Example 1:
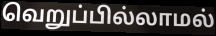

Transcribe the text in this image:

வெறுப்பில்லாமல்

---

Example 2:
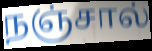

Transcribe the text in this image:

நஞ்சால்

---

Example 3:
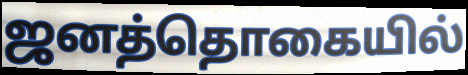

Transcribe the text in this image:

ஜனத்தொகையில்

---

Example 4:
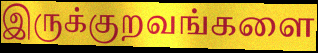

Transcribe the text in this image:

இருக்குறவங்களை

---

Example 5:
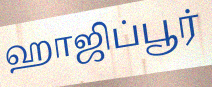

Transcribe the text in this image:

ஹாஜிப்பூர்